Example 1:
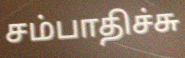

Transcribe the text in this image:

சம்பாதிச்சு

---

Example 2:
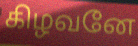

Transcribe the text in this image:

கிழவனே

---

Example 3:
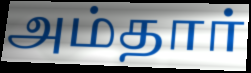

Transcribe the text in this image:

அம்தார்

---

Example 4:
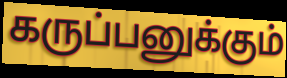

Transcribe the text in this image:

கருப்பனுக்கும்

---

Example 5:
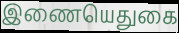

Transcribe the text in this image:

இணையெதுகை